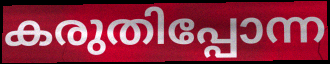
കരുതിപ്പോന്ന